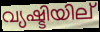
വ്യഷ്ടിയില്